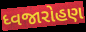
ધ્વજારોહણ